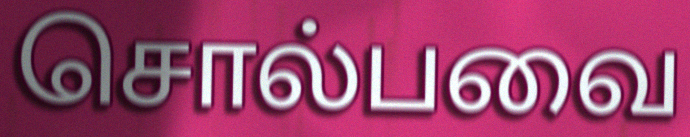
சொல்பவை